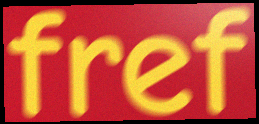
fref